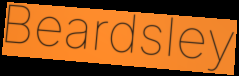
Beardsley